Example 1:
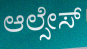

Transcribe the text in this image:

ಆಲ್ಸೇಸ್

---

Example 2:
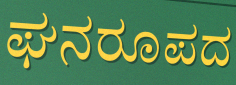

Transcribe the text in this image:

ಘನರೂಪದ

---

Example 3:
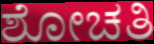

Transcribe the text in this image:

ಶೋಚತಿ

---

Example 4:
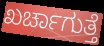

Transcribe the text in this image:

ಖರ್ಚಾಗುತ್ತೆ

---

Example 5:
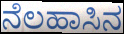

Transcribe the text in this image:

ನೆಲಹಾಸಿನ